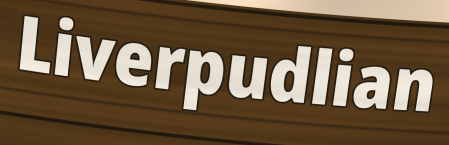
Liverpudlian